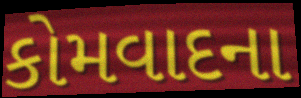
કોમવાદના